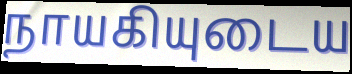
நாயகியுடைய